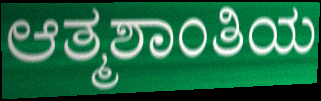
ಆತ್ಮಶಾಂತಿಯ